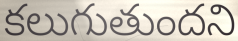
కలుగుతుందని